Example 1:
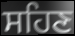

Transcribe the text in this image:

ਸਹਿਣ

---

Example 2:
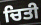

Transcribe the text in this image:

ਚਿਤੀ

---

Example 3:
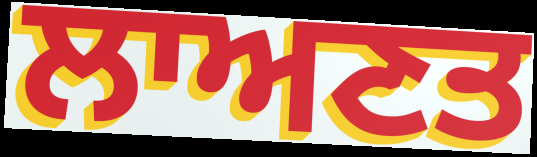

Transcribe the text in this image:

ਲਾਅਣਤ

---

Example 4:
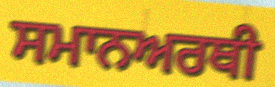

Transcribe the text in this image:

ਸਮਾਨਅਰਥੀ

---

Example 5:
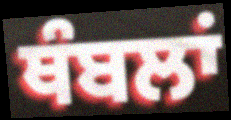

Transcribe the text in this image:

ਥੰਬਲਾਂ